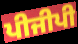
ਪੀਜੀਪੀ